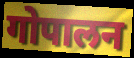
गोपालन